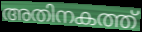
അതിനകത്ത്